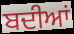
ਬਦੀਆਂ